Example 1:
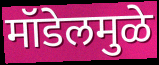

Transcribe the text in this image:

मॉडेलमुळे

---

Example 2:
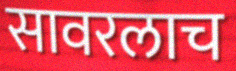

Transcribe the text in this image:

सावरलाच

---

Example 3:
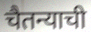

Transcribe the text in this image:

चैतन्याची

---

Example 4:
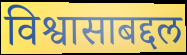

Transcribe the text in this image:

विश्वासाबद्दल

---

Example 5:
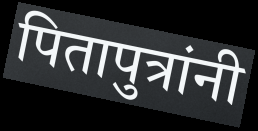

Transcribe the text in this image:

पितापुत्रांनी